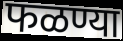
फळण्या